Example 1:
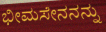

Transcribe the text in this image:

ಭೀಮಸೇನನನ್ನು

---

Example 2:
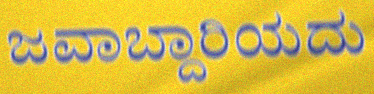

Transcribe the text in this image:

ಜವಾಬ್ದಾರಿಯದು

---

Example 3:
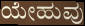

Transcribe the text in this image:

ಯೇಹುವು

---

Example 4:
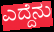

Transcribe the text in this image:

ಎದ್ದೆನು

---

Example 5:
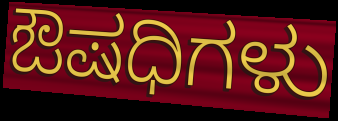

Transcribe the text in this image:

ಔಷಧಿಗಳು